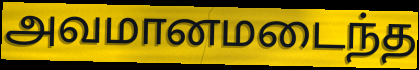
அவமானமடைந்த